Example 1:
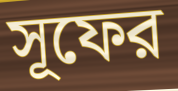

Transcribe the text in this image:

সূফের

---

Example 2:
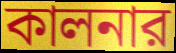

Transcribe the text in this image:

কালনার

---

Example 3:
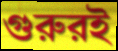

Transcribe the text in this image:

গুরুরই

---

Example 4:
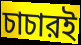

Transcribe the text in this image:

চাচারই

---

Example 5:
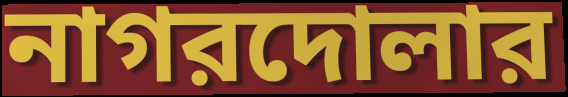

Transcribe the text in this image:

নাগরদোলার